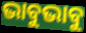
ଭାବୁଭାବୁ